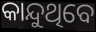
କାନ୍ଦୁଥିବେ